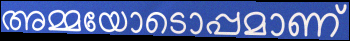
അമ്മയോടൊപ്പമാണ്